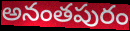
అనంతపురం